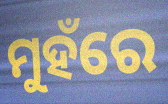
ମୁହଁରେ